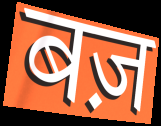
बज़